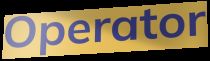
Operator